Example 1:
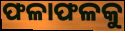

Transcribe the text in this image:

ଫଳାଫଳକୁ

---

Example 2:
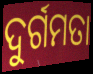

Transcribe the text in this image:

ଦୁର୍ଗମତା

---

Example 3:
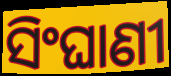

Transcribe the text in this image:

ସିଂଘାଣୀ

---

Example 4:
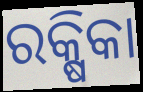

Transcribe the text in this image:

ରକ୍ଷିକା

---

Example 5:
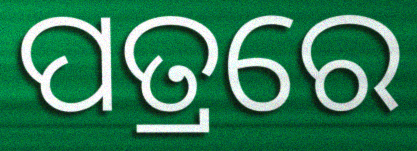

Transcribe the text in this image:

ପତ୍ରରେ